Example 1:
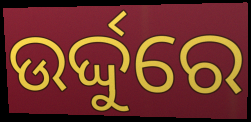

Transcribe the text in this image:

ଉର୍ଦ୍ଦୁରେ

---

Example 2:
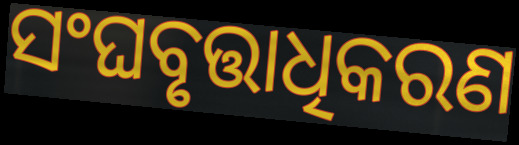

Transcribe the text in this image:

ସଂଘବୃତ୍ତାଧିକରଣ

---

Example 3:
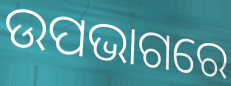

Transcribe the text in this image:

ଉପଭାଗରେ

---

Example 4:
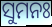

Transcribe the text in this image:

ସୁମନଃ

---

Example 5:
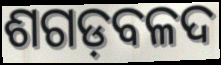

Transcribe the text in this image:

ଶଗଡ଼ବଳଦ